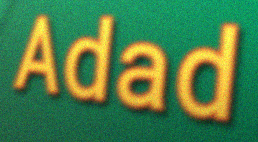
Adad